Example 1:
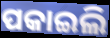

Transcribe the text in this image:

ପକାଇଲି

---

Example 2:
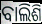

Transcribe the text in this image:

ବାଲିଶି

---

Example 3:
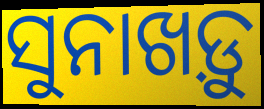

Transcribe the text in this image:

ସୁନାଖଡ଼ୁ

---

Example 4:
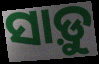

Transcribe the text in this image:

ସାଡ଼ୁ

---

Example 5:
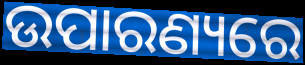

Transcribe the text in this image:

ଉପାରଣ୍ୟରେ